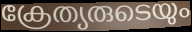
ക്രേത്യരുടെയും